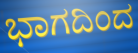
ಭಾಗದಿಂದ